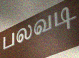
பலவடி